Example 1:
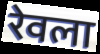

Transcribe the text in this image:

रेवला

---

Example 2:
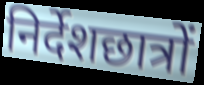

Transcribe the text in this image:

निर्देशछात्रों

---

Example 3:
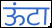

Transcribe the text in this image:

ऊंटा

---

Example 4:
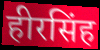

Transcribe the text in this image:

हीरसिंह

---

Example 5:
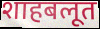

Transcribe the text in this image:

शाहबलूत